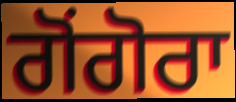
ਗੋਂਗੋਰਾ